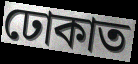
ঢোকাত